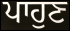
ਪਾਹੁਣ